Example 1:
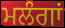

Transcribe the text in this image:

ਮਲੰਗਾਂ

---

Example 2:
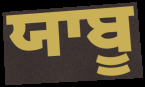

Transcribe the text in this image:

ਯਾਬੂ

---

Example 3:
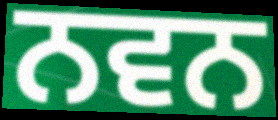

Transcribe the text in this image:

ਨਵਨ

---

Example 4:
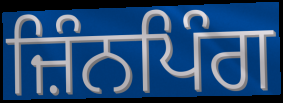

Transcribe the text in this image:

ਜ਼ਿੰਨਪਿੰਗ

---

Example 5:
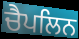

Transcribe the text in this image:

ਚੈਪਲਿਨ